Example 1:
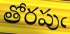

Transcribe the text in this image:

తోరపుఁ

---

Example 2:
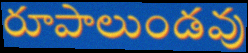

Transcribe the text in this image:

రూపాలుండవు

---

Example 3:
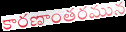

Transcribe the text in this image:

కారణాంతరమున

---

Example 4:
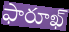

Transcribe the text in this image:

ఫారూఖ్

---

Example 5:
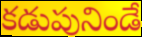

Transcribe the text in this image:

కడుపునిండే